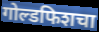
गोल्डफिशचा